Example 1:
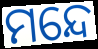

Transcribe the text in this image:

ମନ୍ଦେ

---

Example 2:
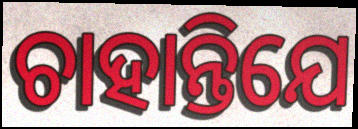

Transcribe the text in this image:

ଚାହାନ୍ତିଯେ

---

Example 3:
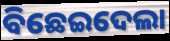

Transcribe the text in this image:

ବିଛେଇଦେଲା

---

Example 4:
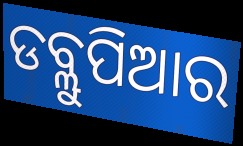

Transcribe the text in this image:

ଡବ୍ଲୁପିଆର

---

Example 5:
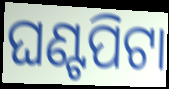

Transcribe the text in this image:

ଘଣ୍ଟପିଟା